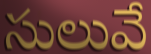
సులువే